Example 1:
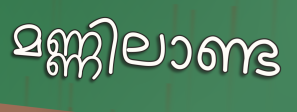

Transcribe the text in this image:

മണ്ണിലാണ്ട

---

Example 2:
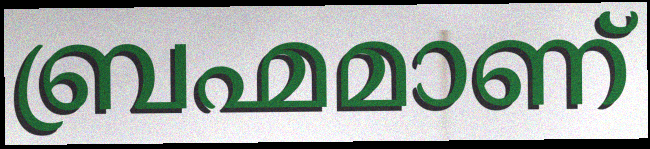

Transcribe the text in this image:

ബ്രഹ്മമാണ്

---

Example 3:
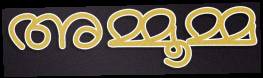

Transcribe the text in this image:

അമ്മൂമ്മ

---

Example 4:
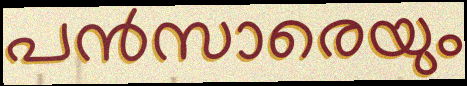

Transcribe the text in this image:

പൻസാരെയും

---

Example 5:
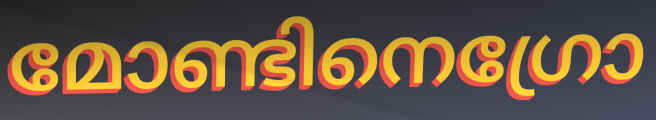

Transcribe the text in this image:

മോണ്ടിനെഗ്രോ